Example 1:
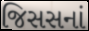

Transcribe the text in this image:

જિસસનાં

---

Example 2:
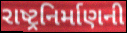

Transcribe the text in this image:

રાષ્ટ્રનિર્માણની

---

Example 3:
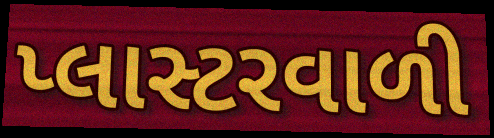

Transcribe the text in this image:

પ્લાસ્ટરવાળી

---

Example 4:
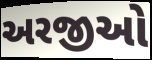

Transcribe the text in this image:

અરજીઓ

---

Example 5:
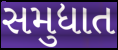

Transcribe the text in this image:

સમુદ્યાત